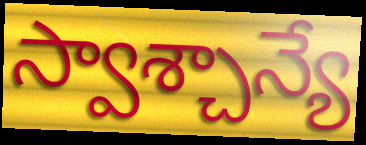
స్వాశ్చాన్యే